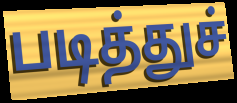
படித்துச்